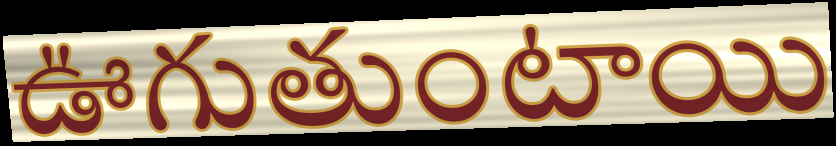
ఊగుతుంటాయి